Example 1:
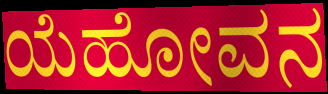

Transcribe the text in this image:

ಯೆಹೋವನ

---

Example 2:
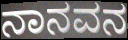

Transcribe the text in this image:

ನಾನವನ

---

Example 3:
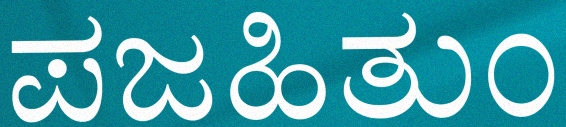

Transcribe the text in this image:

ಪಜಹಿತುಂ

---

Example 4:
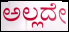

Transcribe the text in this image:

ಅಲ್ಲದೇ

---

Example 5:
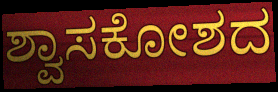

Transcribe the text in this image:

ಶ್ವಾಸಕೋಶದ